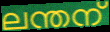
ലന്തന്